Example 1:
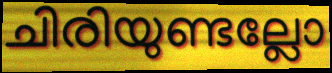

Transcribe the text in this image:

ചിരിയുണ്ടല്ലോ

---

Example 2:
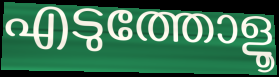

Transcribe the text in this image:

എടുത്തോളൂ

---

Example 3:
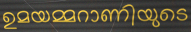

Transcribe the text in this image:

ഉമയമ്മറാണിയുടെ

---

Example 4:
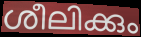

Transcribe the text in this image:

ശീലിക്കും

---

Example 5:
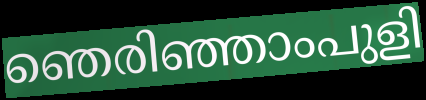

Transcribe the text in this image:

ഞെരിഞ്ഞാംപുളി